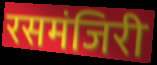
रसमंजिरी